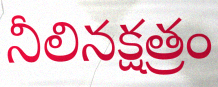
నీలినక్షత్రం